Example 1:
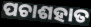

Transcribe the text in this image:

ପଚାଶହାତ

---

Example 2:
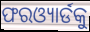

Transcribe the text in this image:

ଫରଓ୍ୟାର୍ଡକୁ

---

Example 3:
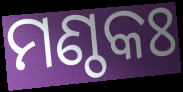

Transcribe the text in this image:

ମଣ୍ଠକଃ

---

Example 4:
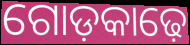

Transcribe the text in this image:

ଗୋଡ଼କାଢ଼େ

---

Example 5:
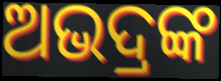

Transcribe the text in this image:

ଅଭଦ୍ରଙ୍କ